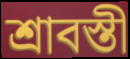
শ্রাবস্তী